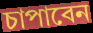
চাপাবেন